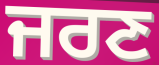
ਜਰਣ